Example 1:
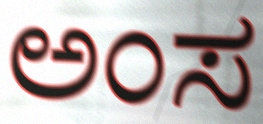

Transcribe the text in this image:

ಅಂಸ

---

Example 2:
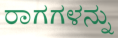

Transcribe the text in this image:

ರಾಗಗಳನ್ನು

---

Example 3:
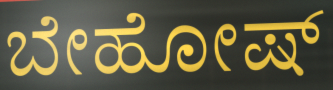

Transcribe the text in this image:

ಬೇಹೋಷ್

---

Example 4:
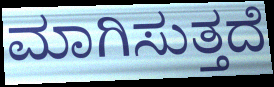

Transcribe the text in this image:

ಮಾಗಿಸುತ್ತದೆ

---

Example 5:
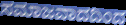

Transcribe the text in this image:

ಸಮಾಜವಾದದಿಂದ